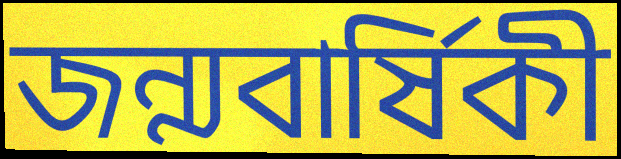
জন্মবার্ষিকী